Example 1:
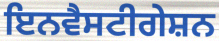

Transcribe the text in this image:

ਇਨਵੈਸਟੀਗੇਸ਼ਨ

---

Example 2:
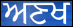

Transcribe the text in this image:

ਅਣਖ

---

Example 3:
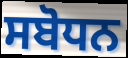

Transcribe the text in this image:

ਸਬੋਧਨ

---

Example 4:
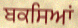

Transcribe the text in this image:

ਬਕਸਿਆਂ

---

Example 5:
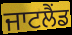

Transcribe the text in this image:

ਜਾਟਲੈਂਡ